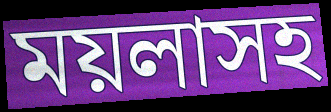
ময়লাসহ